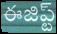
ఈజిప్ట్